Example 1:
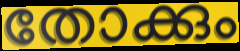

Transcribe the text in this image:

തോക്കും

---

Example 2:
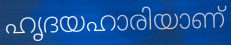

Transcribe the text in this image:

ഹൃദയഹാരിയാണ്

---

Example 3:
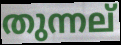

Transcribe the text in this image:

തുന്നല്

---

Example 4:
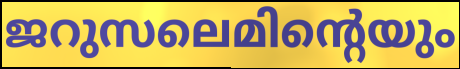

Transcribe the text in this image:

ജറുസലെമിന്റെയും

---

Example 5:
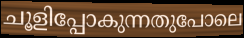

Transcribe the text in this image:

ചൂളിപ്പോകുന്നതുപോലെ